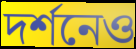
দর্শনেও